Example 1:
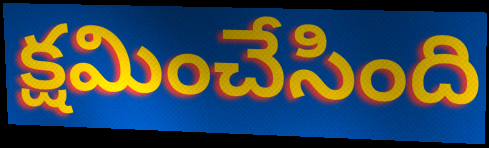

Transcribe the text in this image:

క్షమించేసింది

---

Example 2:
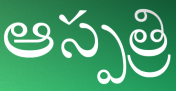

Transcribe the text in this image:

ఆస్పత్రి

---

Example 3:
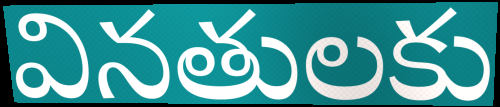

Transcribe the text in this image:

వినతులకు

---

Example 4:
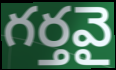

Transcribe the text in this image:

గర్తవై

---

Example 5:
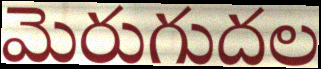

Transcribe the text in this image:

మెరుగుదల